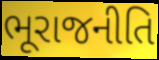
ભૂરાજનીતિ